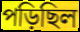
পড়িছিল